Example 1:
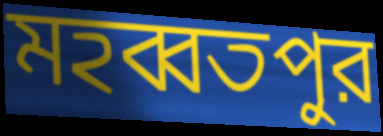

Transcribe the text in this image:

মহব্বতপুর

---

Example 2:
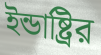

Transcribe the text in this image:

ইন্ডাষ্ট্রির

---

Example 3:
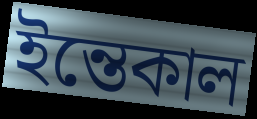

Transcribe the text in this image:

ইন্তেকাল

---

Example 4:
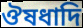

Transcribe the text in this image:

ঔষধাদি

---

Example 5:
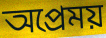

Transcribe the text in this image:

অপ্রেময়